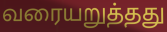
வரையறுத்தது